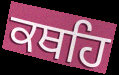
ਕਥਹਿ